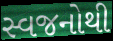
સ્વજનોથી